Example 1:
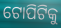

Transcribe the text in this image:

ଟୋପିଟିକୁ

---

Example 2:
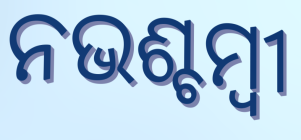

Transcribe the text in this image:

ନଭଶ୍ଚମ୍ବୀ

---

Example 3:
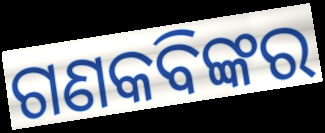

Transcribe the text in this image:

ଗଣକବିଙ୍କର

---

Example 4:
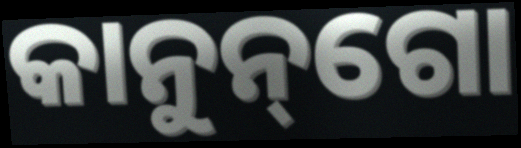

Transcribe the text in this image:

କାନୁନ୍‌ଗୋ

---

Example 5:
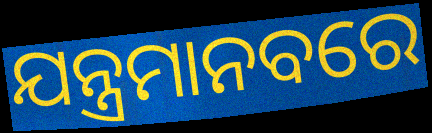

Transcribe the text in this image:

ଯନ୍ତ୍ରମାନବରେ